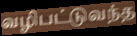
வழிபட்டுவந்த